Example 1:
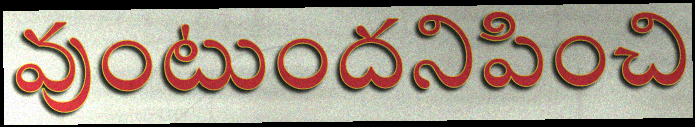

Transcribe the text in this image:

వుంటుందనిపించి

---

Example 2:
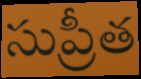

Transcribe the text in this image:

సుప్రీత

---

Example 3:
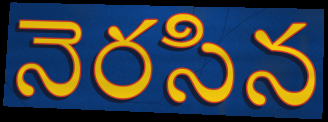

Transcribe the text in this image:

నెరసిన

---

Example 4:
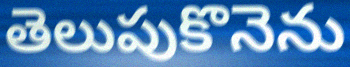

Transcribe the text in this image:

తెలుపుకొనెను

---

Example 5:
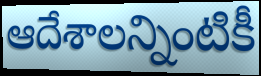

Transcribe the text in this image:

ఆదేశాలన్నింటికీ